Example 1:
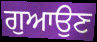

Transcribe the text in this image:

ਗੁਆਉਣ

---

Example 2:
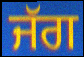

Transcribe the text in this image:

ਜੱਗ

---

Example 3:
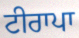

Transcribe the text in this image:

ਟੀਰਾਪਾ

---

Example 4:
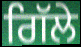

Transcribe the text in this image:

ਗਿੱਲੇ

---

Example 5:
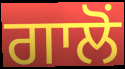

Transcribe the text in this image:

ਗਾਲੋਂ